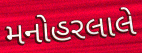
મનોહરલાલે